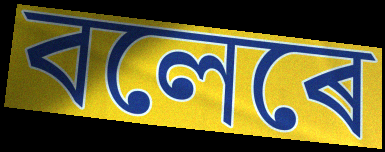
বলেৰে